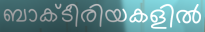
ബാക്ടീരിയകളിൽ